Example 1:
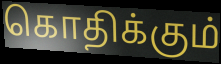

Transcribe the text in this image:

கொதிக்கும்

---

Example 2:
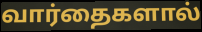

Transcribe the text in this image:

வார்தைகளால்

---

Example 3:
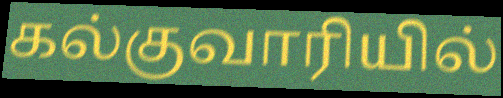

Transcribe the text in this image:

கல்குவாரியில்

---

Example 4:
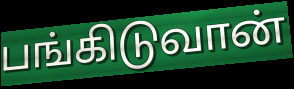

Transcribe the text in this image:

பங்கிடுவான்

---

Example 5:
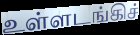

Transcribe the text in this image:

உள்ளடங்கிச்